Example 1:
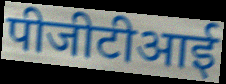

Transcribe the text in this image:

पीजीटीआई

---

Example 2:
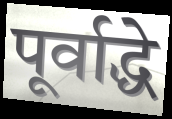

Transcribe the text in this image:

पूर्वाद्धे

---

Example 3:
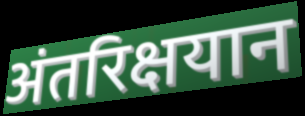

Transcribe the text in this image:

अंतरिक्षयान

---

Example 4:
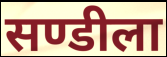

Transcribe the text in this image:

सण्डीला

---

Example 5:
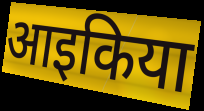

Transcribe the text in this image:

आइकिया